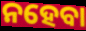
ନହେବା